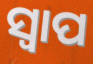
ସ୍ବାପ